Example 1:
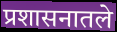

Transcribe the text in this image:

प्रशासनातले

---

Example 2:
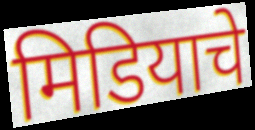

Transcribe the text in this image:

मिडियाचे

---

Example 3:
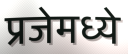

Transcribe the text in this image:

प्रजेमध्ये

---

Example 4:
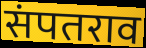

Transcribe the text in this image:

संपतराव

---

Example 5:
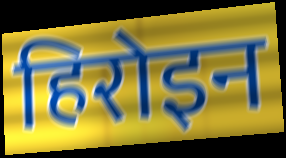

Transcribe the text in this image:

हिरोइन